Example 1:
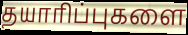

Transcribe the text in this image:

தயாரிப்புகளை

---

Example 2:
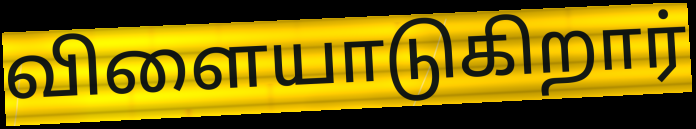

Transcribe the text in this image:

விளையாடுகிறார்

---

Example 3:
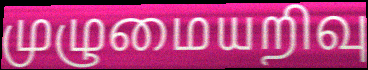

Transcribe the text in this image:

முழுமையறிவு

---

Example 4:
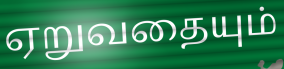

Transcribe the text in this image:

ஏறுவதையும்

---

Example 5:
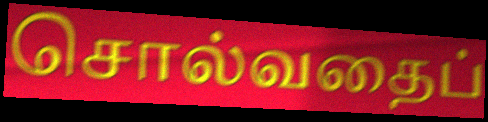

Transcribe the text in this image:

சொல்வதைப்